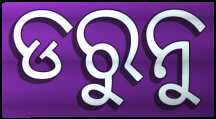
ଡରୁନୁ